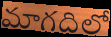
మాగదిలో